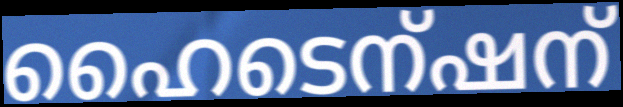
ഹൈടെന്ഷന്